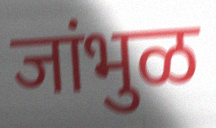
जांभुळ